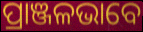
ପ୍ରାଞ୍ଜଳଭାବେ